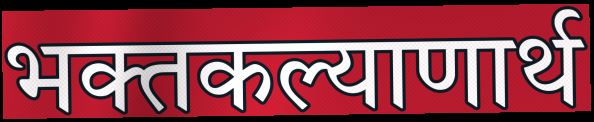
भक्तकल्याणार्थ